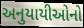
અનુયાયીઓનો